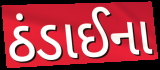
ઠંડાઈના